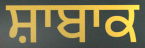
ਸ਼ਾਬਾਕ